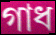
গাধ